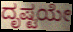
ದೃಷ್ಟಯೇ